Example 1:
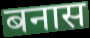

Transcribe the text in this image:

बनास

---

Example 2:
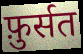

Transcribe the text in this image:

फ़ुर्सत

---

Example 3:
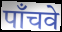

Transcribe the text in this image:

पाँचवे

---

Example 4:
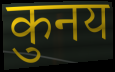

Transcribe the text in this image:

कुनय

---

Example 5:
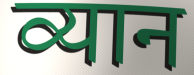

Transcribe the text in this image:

व्यान